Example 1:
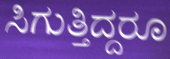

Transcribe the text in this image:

ಸಿಗುತ್ತಿದ್ದರೂ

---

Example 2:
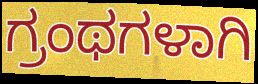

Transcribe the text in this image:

ಗ್ರಂಥಗಳಾಗಿ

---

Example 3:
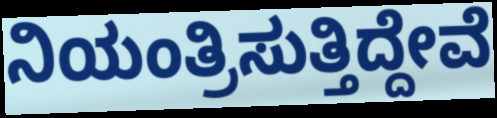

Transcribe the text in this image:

ನಿಯಂತ್ರಿಸುತ್ತಿದ್ದೇವೆ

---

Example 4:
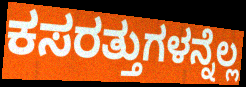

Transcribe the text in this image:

ಕಸರತ್ತುಗಳನ್ನೆಲ್ಲ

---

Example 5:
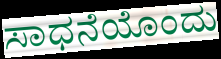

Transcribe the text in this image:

ಸಾಧನೆಯೊಂದು